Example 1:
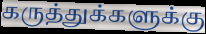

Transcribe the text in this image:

கருத்துக்களுக்கு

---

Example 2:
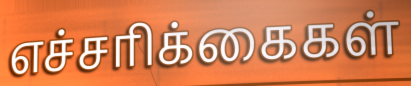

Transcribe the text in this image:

எச்சரிக்கைகள்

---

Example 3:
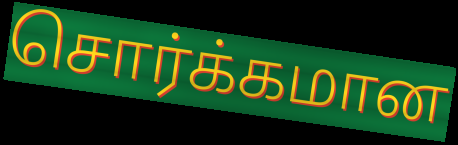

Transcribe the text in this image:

சொர்க்கமான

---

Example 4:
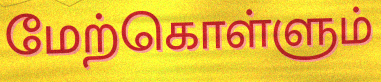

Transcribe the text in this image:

மேற்கொள்ளும்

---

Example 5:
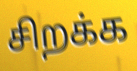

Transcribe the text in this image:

சிறக்க